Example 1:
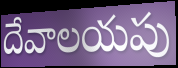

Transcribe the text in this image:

దేవాలయపు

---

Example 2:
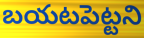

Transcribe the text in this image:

బయటపెట్టని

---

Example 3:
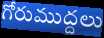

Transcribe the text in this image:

గోరుముద్దలు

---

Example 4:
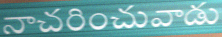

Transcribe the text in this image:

నాచరించువాడు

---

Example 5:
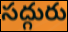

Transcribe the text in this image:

సద్గురు